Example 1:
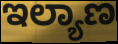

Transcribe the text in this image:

ಇಲ್ಯಾಣ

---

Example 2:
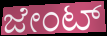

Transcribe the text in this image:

ಜೇಂಟ್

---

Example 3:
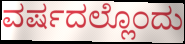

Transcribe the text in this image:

ವರ್ಷದಲ್ಲೊಂದು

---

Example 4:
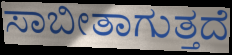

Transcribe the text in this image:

ಸಾಬೀತಾಗುತ್ತದೆ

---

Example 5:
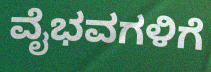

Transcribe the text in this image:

ವೈಭವಗಳಿಗೆ